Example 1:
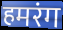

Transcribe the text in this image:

हमरंग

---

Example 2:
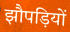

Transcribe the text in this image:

झौपड़ियों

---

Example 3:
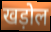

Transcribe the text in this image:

खड़ोल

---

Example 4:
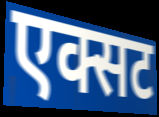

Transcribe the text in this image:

एक्सट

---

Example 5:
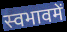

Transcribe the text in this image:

स्वभावमें